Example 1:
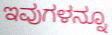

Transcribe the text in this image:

ಇವುಗಳನ್ನೂ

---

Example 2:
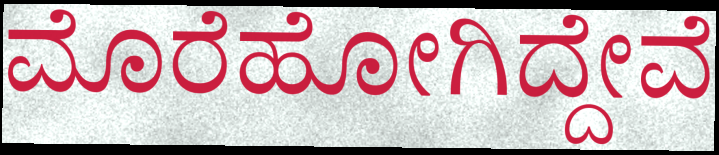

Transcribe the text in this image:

ಮೊರೆಹೋಗಿದ್ದೇವೆ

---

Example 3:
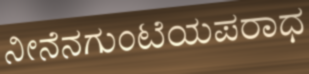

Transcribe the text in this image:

ನೀನೆನಗುಂಟೆಯಪರಾಧ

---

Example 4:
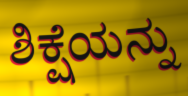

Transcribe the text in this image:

ಶಿಕ್ಷೆಯನ್ನು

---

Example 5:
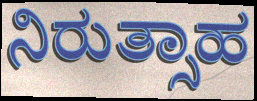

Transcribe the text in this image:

ನಿರುತ್ಸಾಹ